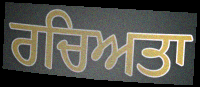
ਰਚਿਅਤਾ